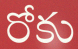
రోకు